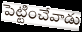
పెట్టించేవాడు